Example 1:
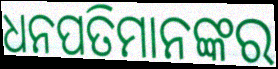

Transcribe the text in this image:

ଧନପତିମାନଙ୍କର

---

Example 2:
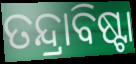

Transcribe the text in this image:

ତନ୍ଦ୍ରାବିଷ୍ଟା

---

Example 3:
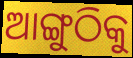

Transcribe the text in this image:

ଆଙ୍ଗୁଠିକୁ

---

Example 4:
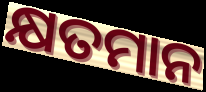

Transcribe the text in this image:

କ୍ଷତମାନ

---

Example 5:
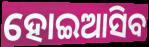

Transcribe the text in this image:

ହୋଇଆସିବ